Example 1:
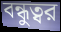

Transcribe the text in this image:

বন্ধুত্বর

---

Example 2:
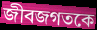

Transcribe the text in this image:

জীবজগতকে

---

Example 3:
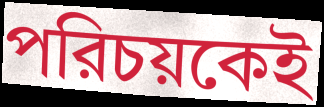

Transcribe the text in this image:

পরিচয়কেই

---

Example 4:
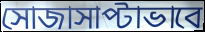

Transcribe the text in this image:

সোজাসাপ্টাভাবে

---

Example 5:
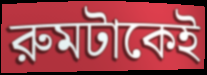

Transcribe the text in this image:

রুমটাকেই